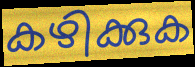
കഴിക്കുക